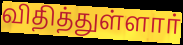
விதித்துள்ளார்